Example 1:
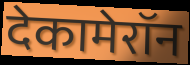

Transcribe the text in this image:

देकामेरॉन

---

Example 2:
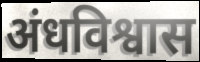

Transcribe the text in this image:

अंधविश्वास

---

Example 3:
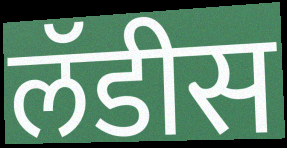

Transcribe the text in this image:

लॅडीस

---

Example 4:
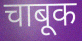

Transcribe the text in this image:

चाबूक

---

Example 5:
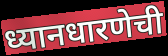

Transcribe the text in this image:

ध्यानधारणेची